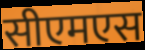
सीएमएस